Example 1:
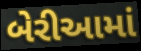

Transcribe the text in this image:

બેરીઆમાં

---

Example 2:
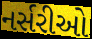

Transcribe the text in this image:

નર્સરીઓ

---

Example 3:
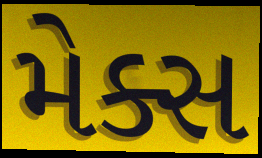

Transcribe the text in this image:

મેક્સ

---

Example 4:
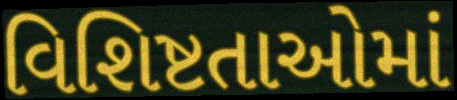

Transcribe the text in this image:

વિશિષ્ટતાઓમાં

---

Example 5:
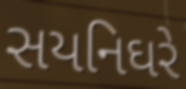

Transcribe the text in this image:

સયનિઘરે